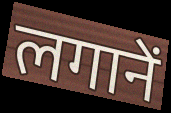
लगानें